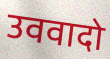
उववादो